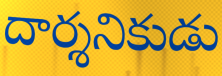
దార్శనికుడు